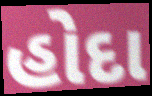
હોદા